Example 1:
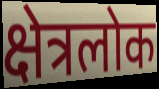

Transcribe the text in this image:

क्षेत्रलोक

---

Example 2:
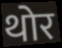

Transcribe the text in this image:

थोर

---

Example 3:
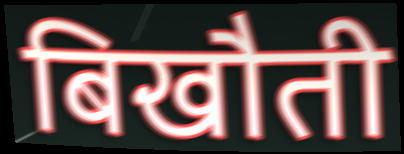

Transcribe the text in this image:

बिखौती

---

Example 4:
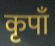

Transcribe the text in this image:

कृपाँ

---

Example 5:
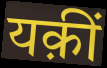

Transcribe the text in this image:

यक़ीं